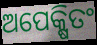
ଅପେକ୍ଷିତଂ